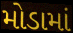
મોડામાં